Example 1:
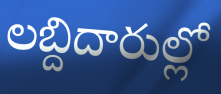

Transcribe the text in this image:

లబ్దిదారుల్లో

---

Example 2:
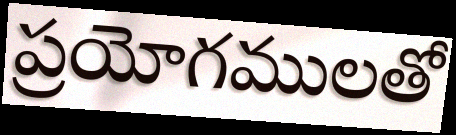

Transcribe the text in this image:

ప్రయోగములతో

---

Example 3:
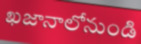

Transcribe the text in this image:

ఖజానాలోనుండి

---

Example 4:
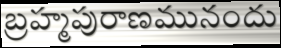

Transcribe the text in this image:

బ్రహ్మపురాణమునందు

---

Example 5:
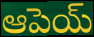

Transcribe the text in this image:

ఆపెయ్